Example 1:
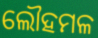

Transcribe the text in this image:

ଲୌହମଳ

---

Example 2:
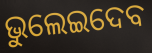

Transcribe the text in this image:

ଭୁଲେଇଦେବ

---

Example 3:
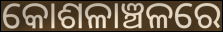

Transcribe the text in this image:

କୋଶଳାଞ୍ଚଳରେ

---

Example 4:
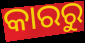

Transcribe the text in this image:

କାରରୁ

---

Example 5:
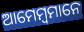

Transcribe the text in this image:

ଆମେମ୍ବମାନେ